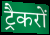
ट्रैकरों